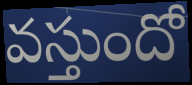
వస్తుందో